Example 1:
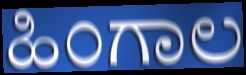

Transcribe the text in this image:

ಹಿಂಗಾಲ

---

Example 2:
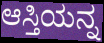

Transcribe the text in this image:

ಆಸ್ತಿಯನ್ನ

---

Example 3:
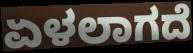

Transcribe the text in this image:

ಏಳಲಾಗದೆ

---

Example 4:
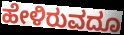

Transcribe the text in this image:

ಹೇಳಿರುವದೂ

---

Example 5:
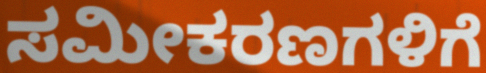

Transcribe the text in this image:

ಸಮೀಕರಣಗಳಿಗೆ